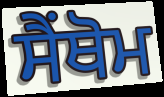
ਸੈਂਥੋਮ